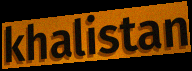
khalistan